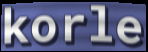
korle